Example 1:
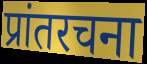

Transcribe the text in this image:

प्रांतरचना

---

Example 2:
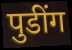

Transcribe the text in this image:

पुडींग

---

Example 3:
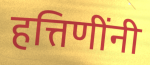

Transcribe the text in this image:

हत्तिणींनी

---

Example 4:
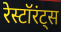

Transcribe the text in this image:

रेस्टॉरंट्स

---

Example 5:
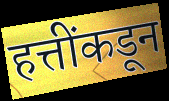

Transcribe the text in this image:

हत्तींकडून